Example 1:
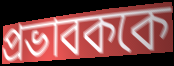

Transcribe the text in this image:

প্রভাবককে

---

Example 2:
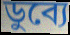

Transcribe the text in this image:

ডুব্যে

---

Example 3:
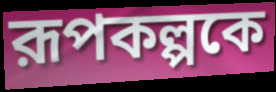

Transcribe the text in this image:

রূপকল্পকে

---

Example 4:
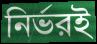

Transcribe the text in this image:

নির্ভরই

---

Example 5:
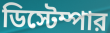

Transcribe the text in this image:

ডিস্টেম্পার